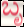
ಬೃ